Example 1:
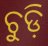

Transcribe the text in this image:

ଚୁଡ଼ି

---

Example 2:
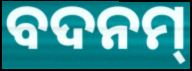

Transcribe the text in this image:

ବଦନମ୍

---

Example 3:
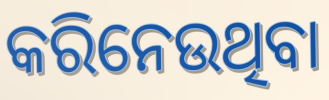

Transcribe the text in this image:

କରିନେଉଥିବା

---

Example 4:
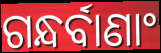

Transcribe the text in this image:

ଗନ୍ଧର୍ବାଣାଂ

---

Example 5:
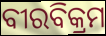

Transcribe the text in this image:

ବୀରବିକ୍ରମ